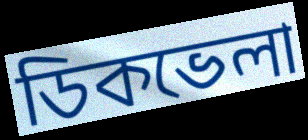
ডিকভেলা